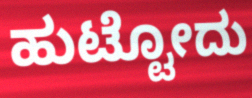
ಹುಟ್ಟೋದು